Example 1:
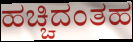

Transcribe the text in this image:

ಹಚ್ಚಿದಂತಹ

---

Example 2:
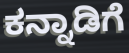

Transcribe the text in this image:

ಕನ್ನಾಡಿಗೆ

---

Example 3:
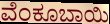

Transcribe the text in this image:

ವೆಂಕೂಬಾಯಿ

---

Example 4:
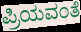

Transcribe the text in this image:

ಪ್ರಿಯವಂತೆ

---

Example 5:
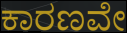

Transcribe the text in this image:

ಕಾರಣವೇ